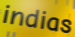
indias